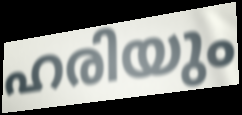
ഹരിയും